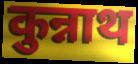
कुन्नाथ